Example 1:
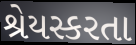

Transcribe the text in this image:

શ્રેયસ્કરતા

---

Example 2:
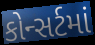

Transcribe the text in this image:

કોન્સર્ટમાં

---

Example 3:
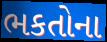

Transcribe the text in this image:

ભકતોના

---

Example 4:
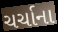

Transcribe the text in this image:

ચર્ચાના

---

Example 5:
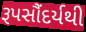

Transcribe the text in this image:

રૂપસૌંદર્યથી